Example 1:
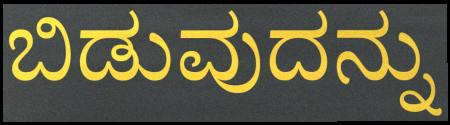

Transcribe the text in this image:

ಬಿಡುವುದನ್ನು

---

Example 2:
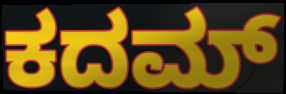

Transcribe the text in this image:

ಕದಮ್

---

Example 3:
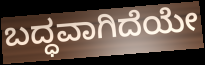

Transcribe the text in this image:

ಬದ್ಧವಾಗಿದೆಯೇ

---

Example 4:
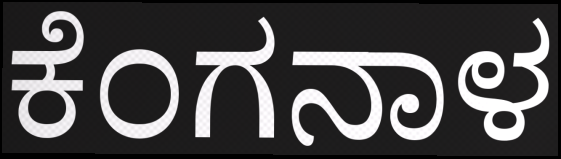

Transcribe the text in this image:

ಕೆಂಗನಾಳ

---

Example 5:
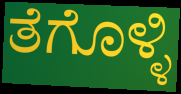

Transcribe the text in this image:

ತೆಗೊಳ್ಳಿ